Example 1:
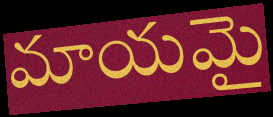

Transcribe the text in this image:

మాయమై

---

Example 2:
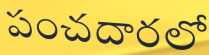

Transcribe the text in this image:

పంచదారలో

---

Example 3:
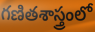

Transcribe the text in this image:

గణితశాస్త్రంలో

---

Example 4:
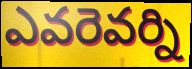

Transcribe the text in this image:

ఎవరెవర్ని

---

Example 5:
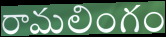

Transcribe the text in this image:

రామలింగం